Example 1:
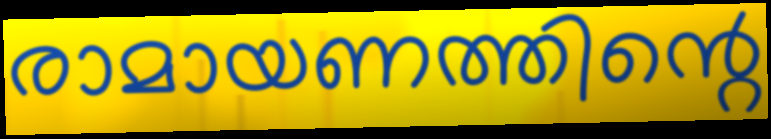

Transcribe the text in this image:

രാമായണത്തിന്റെ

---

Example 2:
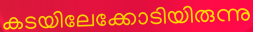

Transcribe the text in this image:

കടയിലേക്കോടിയിരുന്നു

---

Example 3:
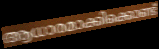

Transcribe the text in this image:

ആധാരമാക്കിക്കൊണ്ട്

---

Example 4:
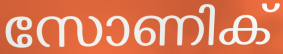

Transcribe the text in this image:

സോണിക്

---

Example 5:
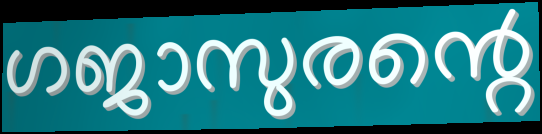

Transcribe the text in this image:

ഗജാസുരന്റെ